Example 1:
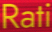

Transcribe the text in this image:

Rati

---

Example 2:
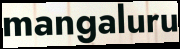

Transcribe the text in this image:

mangaluru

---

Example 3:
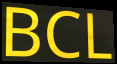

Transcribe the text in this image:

BCL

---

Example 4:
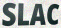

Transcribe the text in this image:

SLAC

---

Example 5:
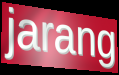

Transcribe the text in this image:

jarang